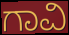
ಗಾವಿ